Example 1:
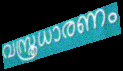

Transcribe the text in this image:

വസ്ത്രധാരണം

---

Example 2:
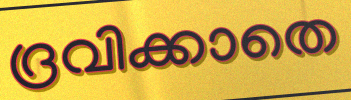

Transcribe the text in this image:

ദ്രവിക്കാതെ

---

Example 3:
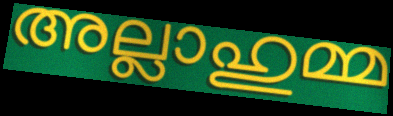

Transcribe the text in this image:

അല്ലാഹുമ്മ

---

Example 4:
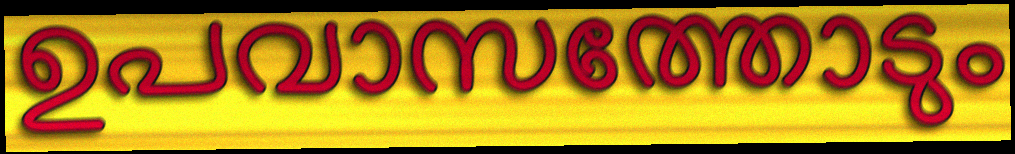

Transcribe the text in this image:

ഉപവാസത്തോടും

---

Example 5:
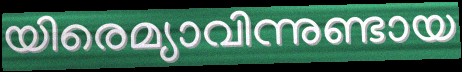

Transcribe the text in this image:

യിരെമ്യാവിന്നുണ്ടായ